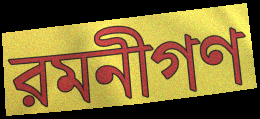
রমনীগণ